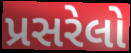
પ્રસરેલો